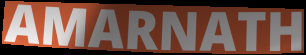
AMARNATH